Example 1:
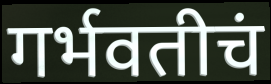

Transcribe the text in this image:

गर्भवतीचं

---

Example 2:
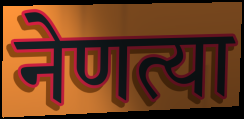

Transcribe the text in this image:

नेणत्या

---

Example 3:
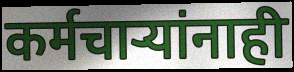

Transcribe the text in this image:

कर्मचाऱ्यांनाही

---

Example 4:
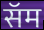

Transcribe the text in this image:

सॅम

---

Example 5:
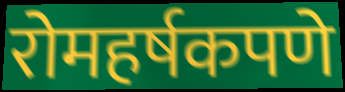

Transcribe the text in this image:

रोमहर्षकपणे